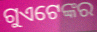
ଗୁଏଟେଙ୍କର